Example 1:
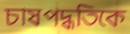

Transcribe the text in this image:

চাষপদ্ধতিকে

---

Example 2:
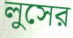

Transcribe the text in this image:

লুসের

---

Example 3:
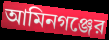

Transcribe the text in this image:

আমিনগঞ্জের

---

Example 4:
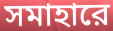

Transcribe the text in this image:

সমাহারে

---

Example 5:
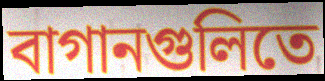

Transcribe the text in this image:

বাগানগুলিতে